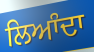
ਲਿਆੰਦਾ